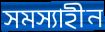
সমস্যাহীন